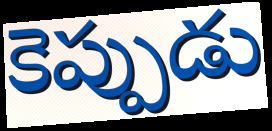
కెప్పుడు